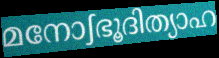
മനോഽഭൂദിത്യാഹ